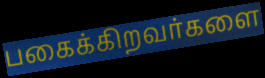
பகைக்கிறவர்களை